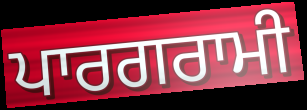
ਪਾਰਗਰਾਮੀ